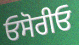
ਓਸੋਰੀਓ